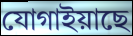
যোগাইয়াছে